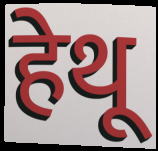
हेथू